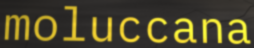
moluccana